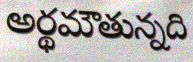
అర్థమౌతున్నది